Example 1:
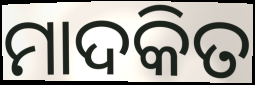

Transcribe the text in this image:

ମାଦକିତ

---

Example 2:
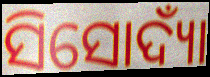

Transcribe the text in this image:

ସିସୋଦ୍ୟାଁ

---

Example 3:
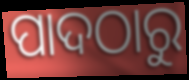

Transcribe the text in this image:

ପାଦଠାରୁ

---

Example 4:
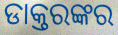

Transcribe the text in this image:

ଡାକ୍ତରଙ୍କର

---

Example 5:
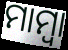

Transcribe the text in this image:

ମାମ୍ଵା